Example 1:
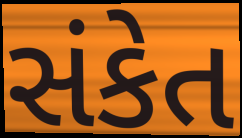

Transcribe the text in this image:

સંકેત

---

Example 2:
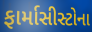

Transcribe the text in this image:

ફાર્માસીસ્ટોના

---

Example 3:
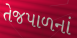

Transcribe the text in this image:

તેજપાળનાં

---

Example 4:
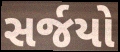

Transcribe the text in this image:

સર્જયો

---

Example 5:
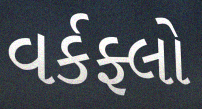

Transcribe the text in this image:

વર્કફ્લો